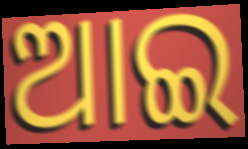
ଆଇ